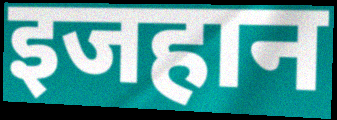
इजहान